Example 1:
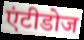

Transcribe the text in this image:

एंटीडोज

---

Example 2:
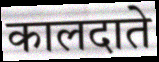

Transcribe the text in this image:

कालदाते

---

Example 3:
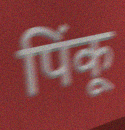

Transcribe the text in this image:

पिंकू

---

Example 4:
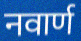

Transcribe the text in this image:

नवार्ण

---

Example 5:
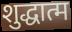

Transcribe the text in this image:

शुद्धात्म